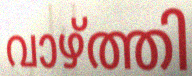
വാഴ്ത്തി